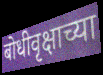
बोधीवृक्षाच्या